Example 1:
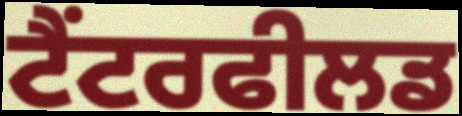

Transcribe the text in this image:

ਟੈਂਟਰਫੀਲਡ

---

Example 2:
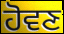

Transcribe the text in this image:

ਹੋਵਣ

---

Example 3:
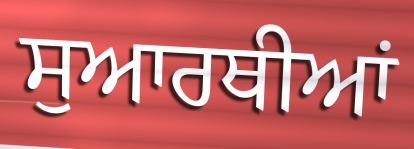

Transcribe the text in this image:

ਸੁਆਰਥੀਆਂ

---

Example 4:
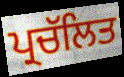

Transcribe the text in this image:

ਪ੍ਰਚੱਲਿਤ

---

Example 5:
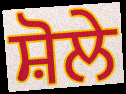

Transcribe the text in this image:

ਸ਼ੋਲੇ